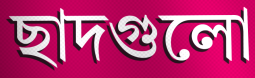
ছাদগুলো